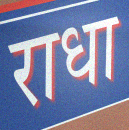
राधा